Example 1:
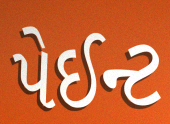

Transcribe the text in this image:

પેઈન્ટ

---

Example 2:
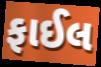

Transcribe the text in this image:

ફાઈલ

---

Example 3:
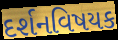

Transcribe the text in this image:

દર્શનવિષયક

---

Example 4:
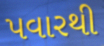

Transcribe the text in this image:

પવારથી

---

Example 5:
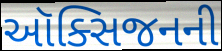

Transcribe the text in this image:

ઑક્સિજનની